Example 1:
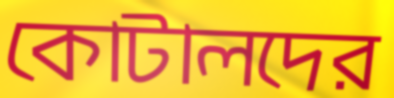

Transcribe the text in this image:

কোটালদের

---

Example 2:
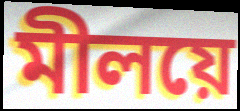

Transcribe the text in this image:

মীলয়ে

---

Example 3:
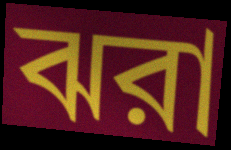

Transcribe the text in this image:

ঝরা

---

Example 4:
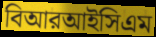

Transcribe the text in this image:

বিআরআইসিএম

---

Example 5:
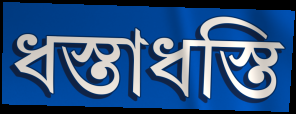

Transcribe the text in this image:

ধস্তাধস্তি